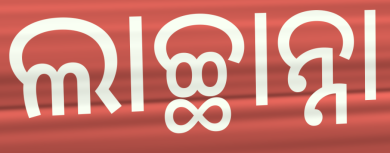
ଲାଚ୍ଛାନ୍ନା